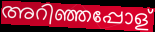
അറിഞ്ഞപ്പോള്